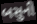
બસુની